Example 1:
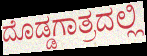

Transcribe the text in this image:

ದೊಡ್ಡಗಾತ್ರದಲ್ಲಿ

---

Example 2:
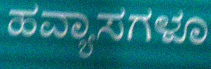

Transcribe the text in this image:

ಹವ್ಯಾಸಗಳೂ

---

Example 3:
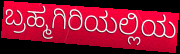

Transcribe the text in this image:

ಬ್ರಹ್ಮಗಿರಿಯಲ್ಲಿಯ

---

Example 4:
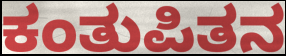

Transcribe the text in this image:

ಕಂತುಪಿತನ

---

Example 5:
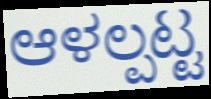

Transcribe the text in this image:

ಆಳಲ್ಪಟ್ಟ